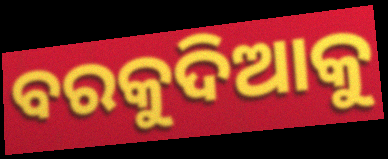
ବରକୁଦିଆକୁ